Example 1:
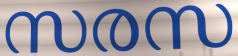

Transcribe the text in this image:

സരസ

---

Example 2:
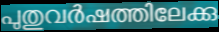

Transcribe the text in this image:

പുതുവർഷത്തിലേക്കു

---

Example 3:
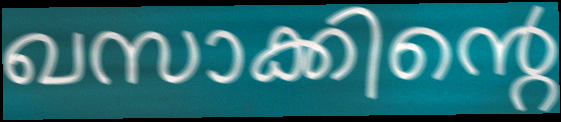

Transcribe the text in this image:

ഖസാക്കിന്റെ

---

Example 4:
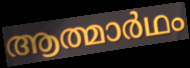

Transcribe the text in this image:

ആത്മാർഥം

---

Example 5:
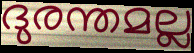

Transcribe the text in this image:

ദുരന്തമല്ല